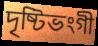
দৃষ্টিভংগী